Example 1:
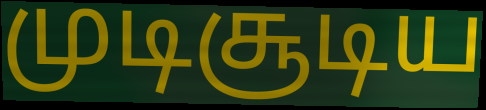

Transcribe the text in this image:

முடிசூடிய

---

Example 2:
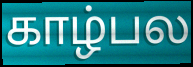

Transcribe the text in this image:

காழ்பல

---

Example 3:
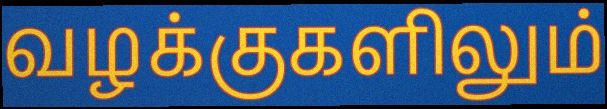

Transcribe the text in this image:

வழக்குகளிலும்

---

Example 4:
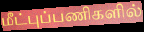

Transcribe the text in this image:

மீட்புப்பணிகளில்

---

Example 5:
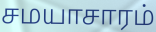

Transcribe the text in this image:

சமயாசாரம்